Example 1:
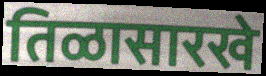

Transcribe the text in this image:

तिळासारखे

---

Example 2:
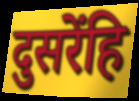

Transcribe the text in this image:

दुसरेंहि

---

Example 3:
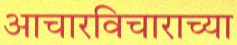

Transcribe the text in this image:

आचारविचाराच्या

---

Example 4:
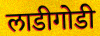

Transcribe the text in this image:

लाडीगोडी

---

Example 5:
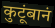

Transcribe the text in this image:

कुटूंबानं